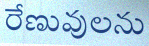
రేణువులను